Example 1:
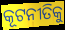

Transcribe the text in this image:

କୂଟନୀତିକୁ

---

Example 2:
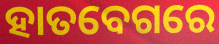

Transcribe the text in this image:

ହାତବେଗରେ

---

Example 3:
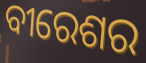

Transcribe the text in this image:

ବୀରେଶର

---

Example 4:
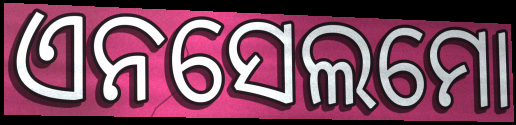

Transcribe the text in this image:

ଏନସେଲମୋ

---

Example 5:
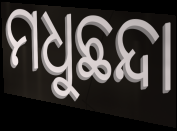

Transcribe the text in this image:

ମଧୁଛନ୍ଦା